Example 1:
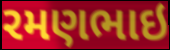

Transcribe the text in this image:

રમણભાઇ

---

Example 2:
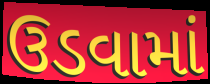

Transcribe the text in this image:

ઉડવામાં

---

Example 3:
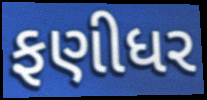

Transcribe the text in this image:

ફણીધર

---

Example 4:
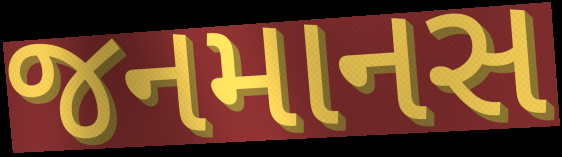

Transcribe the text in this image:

જનમાનસ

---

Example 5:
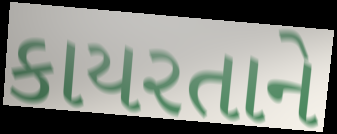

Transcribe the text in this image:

કાયરતાને